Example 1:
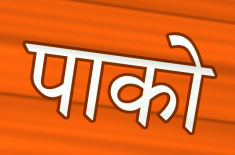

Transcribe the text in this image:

पाको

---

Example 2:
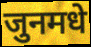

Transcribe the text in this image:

जुनमधे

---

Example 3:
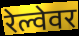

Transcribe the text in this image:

रेल्वेवर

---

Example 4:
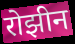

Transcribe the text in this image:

रोझीन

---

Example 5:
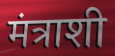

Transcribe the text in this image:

मंत्राशी